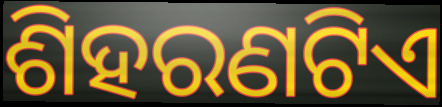
ଶିହରଣଟିଏ